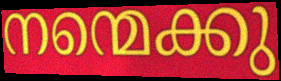
നന്മെക്കു